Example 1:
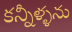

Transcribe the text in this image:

కన్నీళ్ళను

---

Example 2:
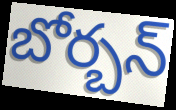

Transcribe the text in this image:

బోర్బన్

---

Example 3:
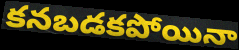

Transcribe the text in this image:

కనబడకపోయినా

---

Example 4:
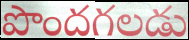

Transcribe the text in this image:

పొందగలడు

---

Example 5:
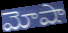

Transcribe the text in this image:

మోషా